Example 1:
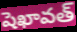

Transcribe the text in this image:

షెఖావత్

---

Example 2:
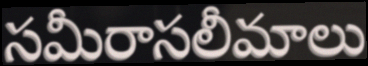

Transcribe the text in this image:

సమీరాసలీమాలు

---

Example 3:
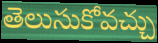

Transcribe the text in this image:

తెలుసుకోవచ్చు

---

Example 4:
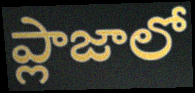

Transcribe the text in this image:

ప్లాజాలో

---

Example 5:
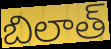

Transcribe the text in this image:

బిలాత్